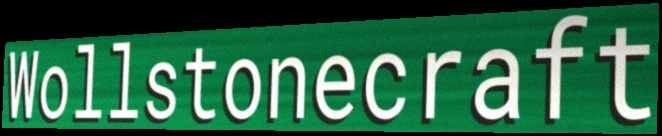
Wollstonecraft